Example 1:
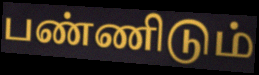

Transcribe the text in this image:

பண்ணிடும்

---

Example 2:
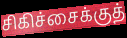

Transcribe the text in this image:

சிகிச்சைக்குத்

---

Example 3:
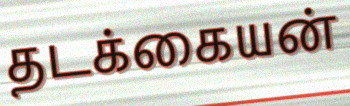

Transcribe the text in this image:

தடக்கையன்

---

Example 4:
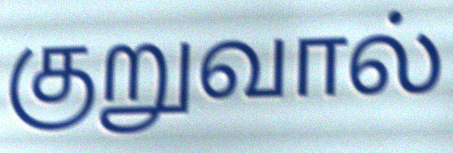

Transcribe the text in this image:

குறுவால்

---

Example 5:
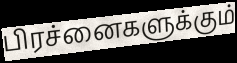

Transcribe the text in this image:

பிரச்னைகளுக்கும்